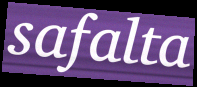
safalta